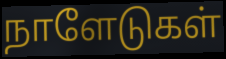
நாளேடுகள்